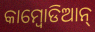
କାମ୍ବୋଡିଆନ୍